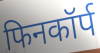
फिनकॉर्प